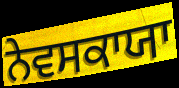
ਨੇਵਸਕਾਯਾ